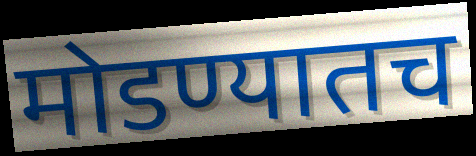
मोडण्यातच